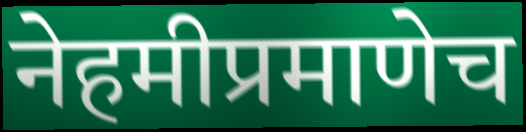
नेहमीप्रमाणेच